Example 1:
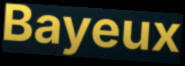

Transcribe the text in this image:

Bayeux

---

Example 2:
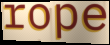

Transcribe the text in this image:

rope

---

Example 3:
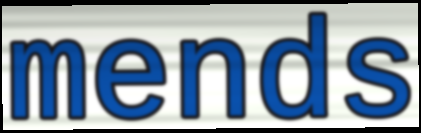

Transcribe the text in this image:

mends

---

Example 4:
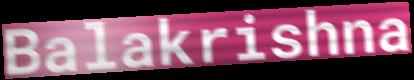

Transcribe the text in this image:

Balakrishna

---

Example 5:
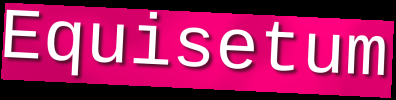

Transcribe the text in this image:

Equisetum